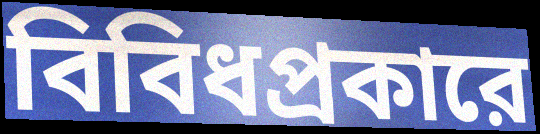
বিবিধপ্রকারে